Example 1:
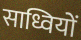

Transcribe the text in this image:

साध्वियों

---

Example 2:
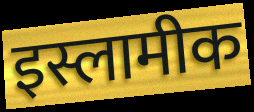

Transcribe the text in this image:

इस्लामीक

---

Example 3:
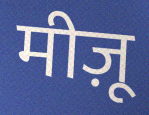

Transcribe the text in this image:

मीज़ू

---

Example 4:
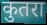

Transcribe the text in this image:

कुतरा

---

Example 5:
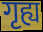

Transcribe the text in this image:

गृह्य